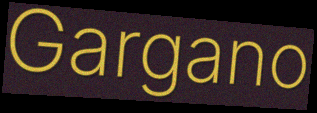
Gargano